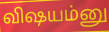
விஷயம்னு